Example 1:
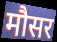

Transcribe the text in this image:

मौसर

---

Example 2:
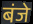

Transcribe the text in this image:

बंजे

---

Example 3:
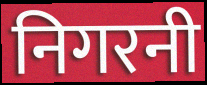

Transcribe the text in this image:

निगरनी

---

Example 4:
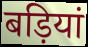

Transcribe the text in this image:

बड़ियां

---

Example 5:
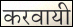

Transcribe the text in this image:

करवायी